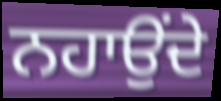
ਨਹਾਉਂਦੇ